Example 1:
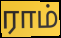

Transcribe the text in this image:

ராம்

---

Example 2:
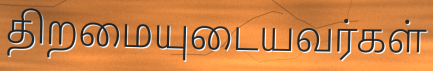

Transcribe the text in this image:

திறமையுடையவர்கள்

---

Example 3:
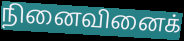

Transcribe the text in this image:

நினைவினைக்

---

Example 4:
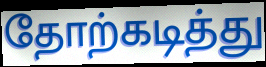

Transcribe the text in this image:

தோற்கடித்து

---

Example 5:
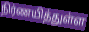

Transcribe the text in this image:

நிர்ணயித்துள்ள